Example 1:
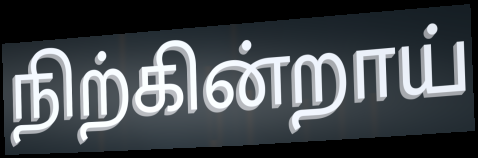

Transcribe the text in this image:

நிற்கின்றாய்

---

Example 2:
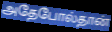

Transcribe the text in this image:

அதேபோல்தான்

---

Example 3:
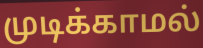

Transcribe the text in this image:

முடிக்காமல்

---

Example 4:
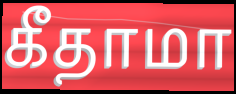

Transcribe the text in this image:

கீதாமா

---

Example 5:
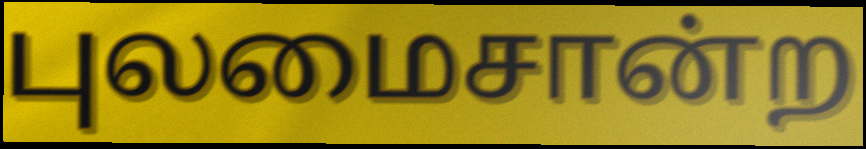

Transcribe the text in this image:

புலமைசான்ற